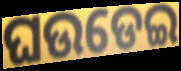
ଘଉଡେଇ